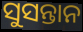
ସୁସନ୍ତାନ